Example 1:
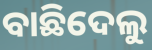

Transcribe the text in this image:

ବାଛିଦେଲୁ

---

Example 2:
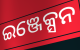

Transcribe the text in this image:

ଇଞ୍ଜେକ୍ସନ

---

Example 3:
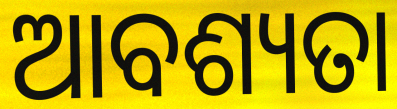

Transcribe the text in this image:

ଆବଶ୍ୟତା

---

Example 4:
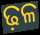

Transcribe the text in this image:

ଢ଼ଳ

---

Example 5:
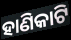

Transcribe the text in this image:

ହାଣିକାଟି